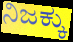
ನಿಜಕ್ಕು